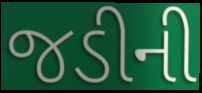
જડીની